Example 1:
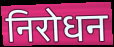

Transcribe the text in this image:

निरोधन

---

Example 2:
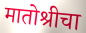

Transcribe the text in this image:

मातोश्रीचा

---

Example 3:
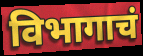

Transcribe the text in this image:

विभागाचं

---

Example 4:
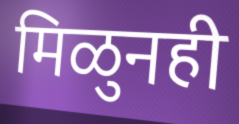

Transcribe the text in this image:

मिळुनही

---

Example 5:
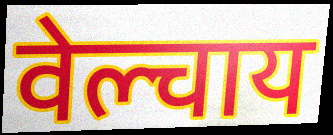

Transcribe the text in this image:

वेल्चाय